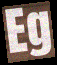
Eg